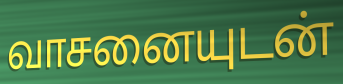
வாசனையுடன்